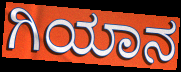
ಗಿಯಾನ